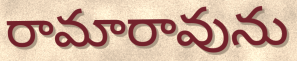
రామారావును